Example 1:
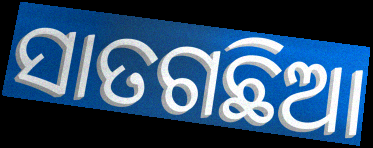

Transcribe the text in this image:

ସାତଗଛିଆ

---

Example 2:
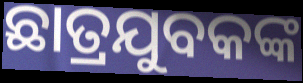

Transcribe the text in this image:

ଛାତ୍ରଯୁବକଙ୍କ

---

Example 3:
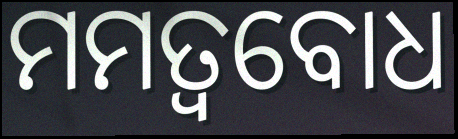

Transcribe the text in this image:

ମମତ୍ବବୋଧ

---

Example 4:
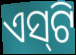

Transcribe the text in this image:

ଏସ୍‌ଟି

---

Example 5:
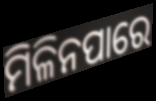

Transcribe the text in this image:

ମିଳିନପାରେ